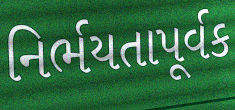
નિર્ભયતાપૂર્વક